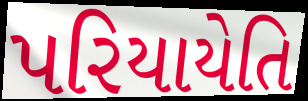
પરિયાયેતિ